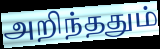
அறிந்ததும்